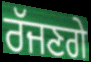
ਰੱਜਣਗੇ